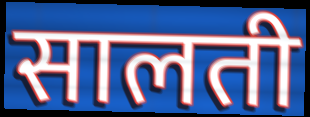
सालती